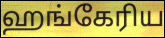
ஹங்கேரிய